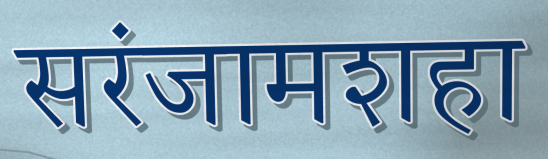
सरंजामशहा